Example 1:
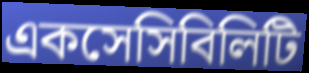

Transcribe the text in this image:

একসেসিবিলিটি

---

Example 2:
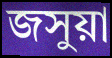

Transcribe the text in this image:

জসুয়া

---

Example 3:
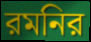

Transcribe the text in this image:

রমনির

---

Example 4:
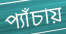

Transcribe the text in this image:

প্যাঁচায়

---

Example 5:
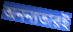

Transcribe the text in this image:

অনন্যতারই